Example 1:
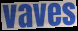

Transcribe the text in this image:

vaves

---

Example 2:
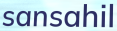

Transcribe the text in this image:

sansahil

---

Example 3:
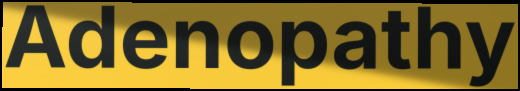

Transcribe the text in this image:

Adenopathy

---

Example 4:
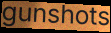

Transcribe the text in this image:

gunshots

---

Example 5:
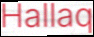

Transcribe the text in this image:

Hallaq